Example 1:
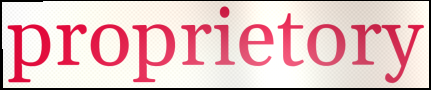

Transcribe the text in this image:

proprietory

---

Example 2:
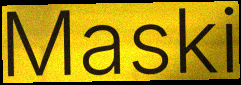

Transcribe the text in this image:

Maski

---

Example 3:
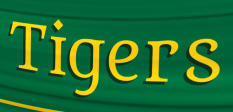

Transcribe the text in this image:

Tigers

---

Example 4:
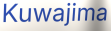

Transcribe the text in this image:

Kuwajima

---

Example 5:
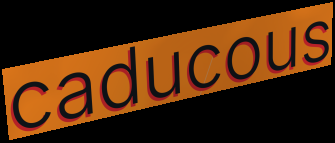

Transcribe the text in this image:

caducous